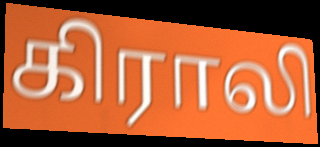
கிராலி